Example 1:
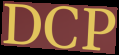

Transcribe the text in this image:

DCP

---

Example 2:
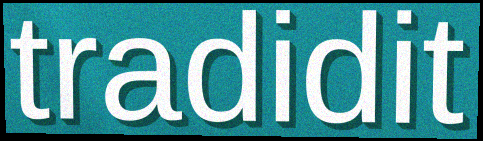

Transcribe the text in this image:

tradidit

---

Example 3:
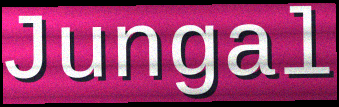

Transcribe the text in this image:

Jungal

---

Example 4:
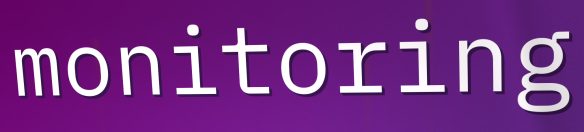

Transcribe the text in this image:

monitoring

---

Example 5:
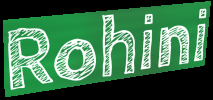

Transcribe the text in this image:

Rohini